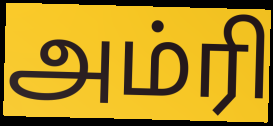
அம்ரி